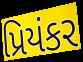
પ્રિયંકર